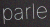
parle